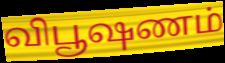
விபூஷணம்